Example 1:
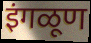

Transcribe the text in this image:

इंगळूण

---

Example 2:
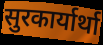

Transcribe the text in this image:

सुरकार्यार्था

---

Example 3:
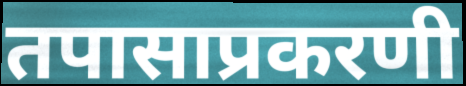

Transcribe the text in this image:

तपासाप्रकरणी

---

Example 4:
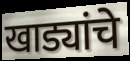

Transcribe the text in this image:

खाड्यांचे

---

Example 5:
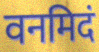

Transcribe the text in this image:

वनमिदं